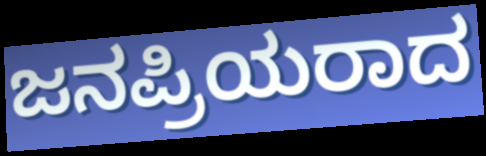
ಜನಪ್ರಿಯರಾದ